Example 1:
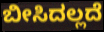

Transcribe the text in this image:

ಬೀಸಿದಲ್ಲದೆ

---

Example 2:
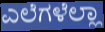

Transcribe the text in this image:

ಎಲೆಗಳೆಲ್ಲಾ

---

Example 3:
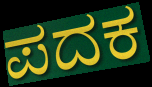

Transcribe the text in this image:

ಪದಕ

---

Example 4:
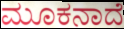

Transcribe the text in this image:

ಮೂಕನಾದೆ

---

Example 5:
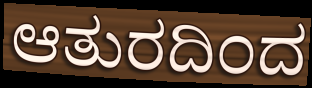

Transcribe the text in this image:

ಆತುರದಿಂದ